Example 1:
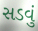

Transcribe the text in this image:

સડવું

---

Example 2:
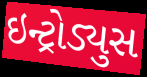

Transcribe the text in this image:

ઇન્ટ્રોડ્યુસ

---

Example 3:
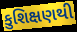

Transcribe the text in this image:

કુશિક્ષણથી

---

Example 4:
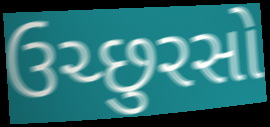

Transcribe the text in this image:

ઉચ્છુરસો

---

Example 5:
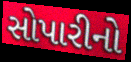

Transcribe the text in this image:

સોપારીનો